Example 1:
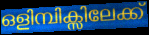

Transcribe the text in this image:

ഒളിമ്പിക്സിലേക്ക്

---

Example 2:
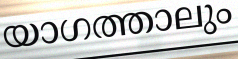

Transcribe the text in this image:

യാഗത്താലും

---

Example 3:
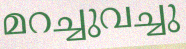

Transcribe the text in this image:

മറച്ചുവച്ചു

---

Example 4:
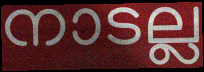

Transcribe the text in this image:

നാടല്ല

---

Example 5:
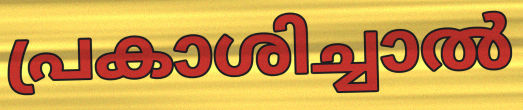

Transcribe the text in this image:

പ്രകാശിച്ചാൽ